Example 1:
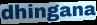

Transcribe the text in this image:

dhingana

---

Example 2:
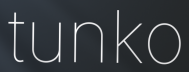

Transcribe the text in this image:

tunko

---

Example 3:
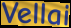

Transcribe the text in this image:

Vellai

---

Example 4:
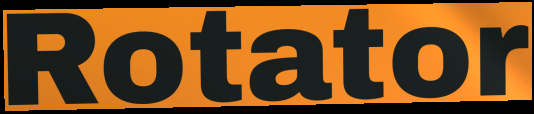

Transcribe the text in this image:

Rotator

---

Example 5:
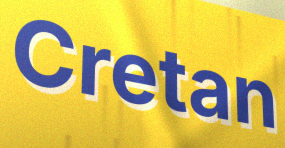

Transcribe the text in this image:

Cretan